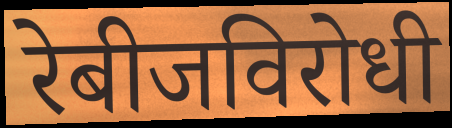
रेबीजविरोधी